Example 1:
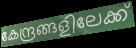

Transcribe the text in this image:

കേന്ദ്രങ്ങളിലേക്ക്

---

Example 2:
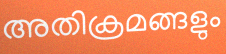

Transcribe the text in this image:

അതിക്രമങ്ങളും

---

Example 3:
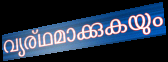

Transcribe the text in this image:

വ്യര്ഥമാക്കുകയും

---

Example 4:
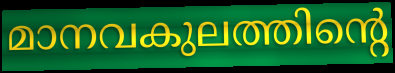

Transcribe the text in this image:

മാനവകുലത്തിന്റെ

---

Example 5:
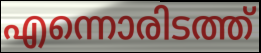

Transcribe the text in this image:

എന്നൊരിടത്ത്